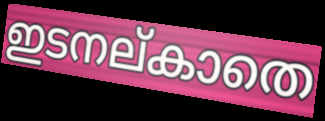
ഇടനല്കാതെ